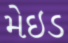
મેઇડ